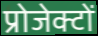
प्रोजेक्टों